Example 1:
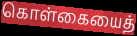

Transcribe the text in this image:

கொள்கையைத்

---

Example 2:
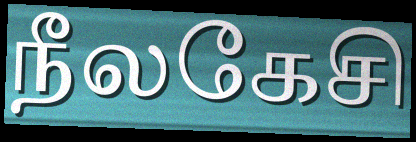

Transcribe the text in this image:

நீலகேசி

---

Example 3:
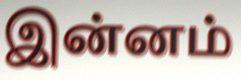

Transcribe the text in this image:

இன்னம்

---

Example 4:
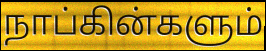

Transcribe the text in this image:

நாப்கின்களும்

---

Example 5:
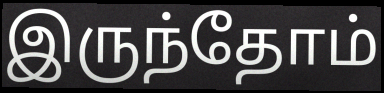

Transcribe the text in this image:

இருந்தோம்